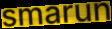
smarun